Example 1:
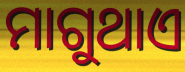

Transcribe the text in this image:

ମାଗୁଥାଏ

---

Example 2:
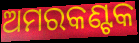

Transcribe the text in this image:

ଅମରକଣ୍ଟକ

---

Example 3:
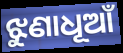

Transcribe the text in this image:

ଝୁଣାଧୂଆଁ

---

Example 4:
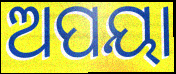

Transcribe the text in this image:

ଅପୟା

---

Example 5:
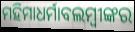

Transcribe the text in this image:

ମହିମାଧର୍ମାବଲମ୍ବୀଙ୍କର